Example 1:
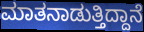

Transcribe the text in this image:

ಮಾತನಾಡುತ್ತಿದ್ದಾನೆ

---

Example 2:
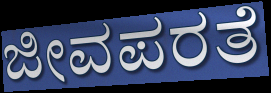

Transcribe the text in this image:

ಜೀವಪರತೆ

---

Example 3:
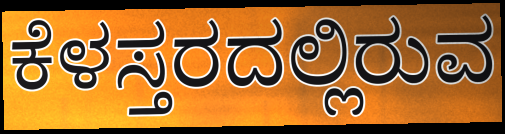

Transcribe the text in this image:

ಕೆಳಸ್ತರದಲ್ಲಿರುವ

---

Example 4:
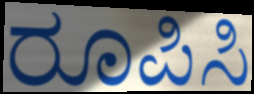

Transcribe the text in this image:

ರೂಪಿಸಿ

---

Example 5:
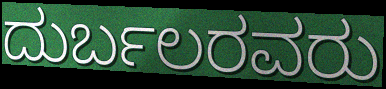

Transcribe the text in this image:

ದುರ್ಬಲರವರು